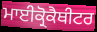
ਮਾਈਕ੍ਰੋਕੈਥੀਟਰ